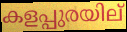
കളപ്പുരയില്